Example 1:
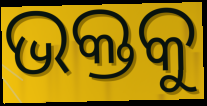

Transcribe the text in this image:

ଭକ୍ତକୁ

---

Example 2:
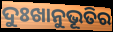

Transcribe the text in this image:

ଦୁଃଖାନୁଭୂତିର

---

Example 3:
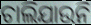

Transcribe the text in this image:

ଚାଲିଯାଉନି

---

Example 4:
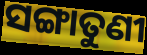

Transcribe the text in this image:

ସଙ୍ଗାତୁଣୀ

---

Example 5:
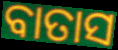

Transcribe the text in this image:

ବାତାସ